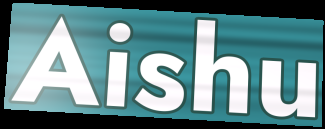
Aishu